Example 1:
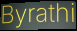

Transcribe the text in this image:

Byrathi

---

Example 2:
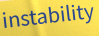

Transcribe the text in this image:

instability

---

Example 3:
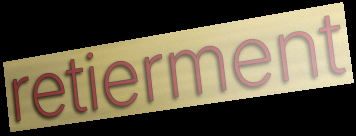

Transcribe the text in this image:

retierment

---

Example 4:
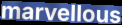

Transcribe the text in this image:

marvellous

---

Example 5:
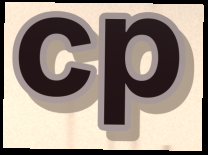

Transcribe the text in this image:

cp